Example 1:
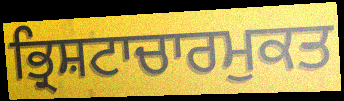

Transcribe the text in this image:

ਭ੍ਰਿਸ਼ਟਾਚਾਰਮੁਕਤ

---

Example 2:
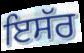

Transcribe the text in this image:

ਇਸੱਰ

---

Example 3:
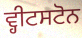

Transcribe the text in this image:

ਵ੍ਹੀਟਸਟੋਨ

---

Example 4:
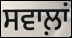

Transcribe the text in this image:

ਸਵਾਲ਼ਾਂ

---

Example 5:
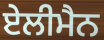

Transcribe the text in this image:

ਏਲੀਮੈਨ